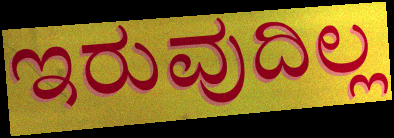
ಇರುವುದಿಲ್ಲ